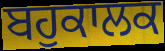
ਬਹੁਕਾਲਕ